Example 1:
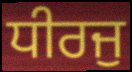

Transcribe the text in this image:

ਧੀਰਜੁ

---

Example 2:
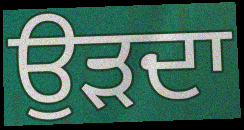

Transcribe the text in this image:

ਉੜਦਾ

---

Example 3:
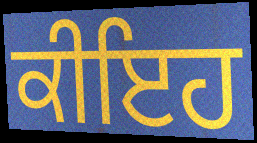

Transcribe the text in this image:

ਕੀਇਹ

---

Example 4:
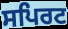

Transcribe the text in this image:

ਸਪਿਰਟ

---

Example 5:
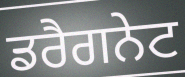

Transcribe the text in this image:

ਡਰੈਗਨੇਟ